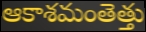
ఆకాశమంతెత్తు